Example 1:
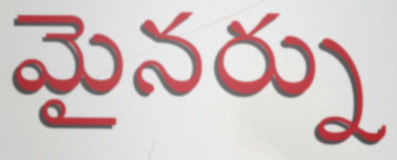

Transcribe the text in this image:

మైనర్ను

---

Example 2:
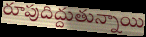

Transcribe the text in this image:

రూపుదిద్దుతున్నాయి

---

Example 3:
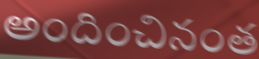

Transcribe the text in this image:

అందించినంత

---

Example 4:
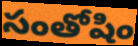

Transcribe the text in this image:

సంతోషిం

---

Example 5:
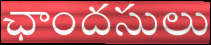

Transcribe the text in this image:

ఛాందసులు